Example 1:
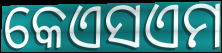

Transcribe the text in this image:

କେଏସଏମ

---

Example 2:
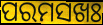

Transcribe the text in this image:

ପରମସଖଃ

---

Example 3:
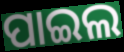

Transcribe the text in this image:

ପାଇଲ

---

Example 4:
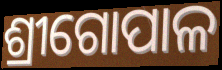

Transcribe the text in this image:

ଶ୍ରୀଗୋପାଳ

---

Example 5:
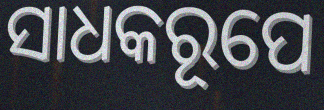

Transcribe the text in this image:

ସାଧକରୂପେ